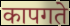
कापगते